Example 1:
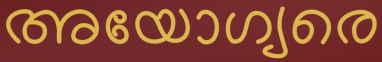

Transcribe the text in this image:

അയോഗ്യരെ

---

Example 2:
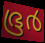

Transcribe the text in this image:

ഭൂർ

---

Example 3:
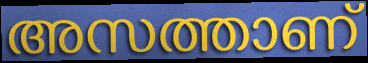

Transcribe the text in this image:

അസത്താണ്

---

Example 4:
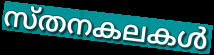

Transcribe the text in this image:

സ്തനകലകൾ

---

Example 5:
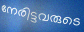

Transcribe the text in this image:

നേരിട്ടവരുടെ